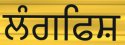
ਲੰਗਫਿਸ਼